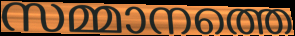
സമ്മാനത്തെ